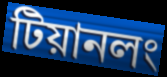
টিয়ানলং